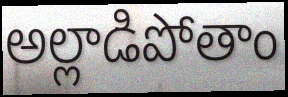
అల్లాడిపోతాం